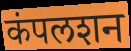
कंपलशन